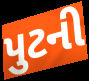
પુટની